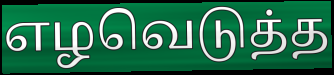
எழவெடுத்த